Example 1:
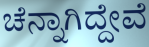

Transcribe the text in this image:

ಚೆನ್ನಾಗಿದ್ದೇವೆ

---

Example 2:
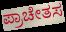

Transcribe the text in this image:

ಪ್ರಾಚೇತಸ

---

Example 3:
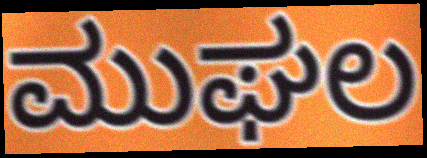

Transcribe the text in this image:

ಮುಘಲ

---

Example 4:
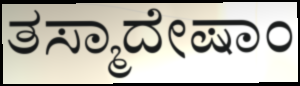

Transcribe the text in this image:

ತಸ್ಮಾದೇಷಾಂ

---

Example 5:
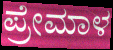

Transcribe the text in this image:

ಪ್ರೇಮಾಳ